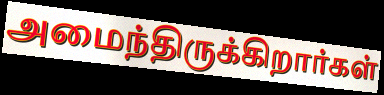
அமைந்திருக்கிறார்கள்